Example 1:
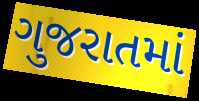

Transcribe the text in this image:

ગુજરાતમાં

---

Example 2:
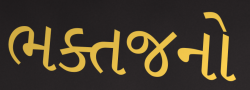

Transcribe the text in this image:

ભક્તજનો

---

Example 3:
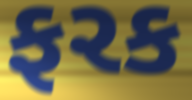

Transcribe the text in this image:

ફરક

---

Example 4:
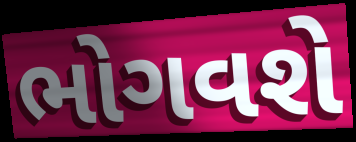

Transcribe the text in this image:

ભોગવશે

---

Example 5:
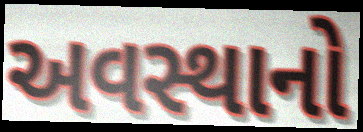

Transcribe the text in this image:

અવસ્થાનો